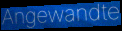
Angewandte